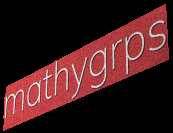
mathygrps